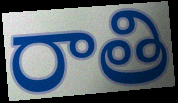
రాతి